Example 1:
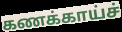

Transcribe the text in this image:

கணக்காய்ச்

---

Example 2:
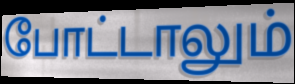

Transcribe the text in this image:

போட்டாலும்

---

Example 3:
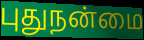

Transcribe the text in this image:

புதுநன்மை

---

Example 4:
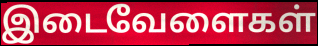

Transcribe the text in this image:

இடைவேளைகள்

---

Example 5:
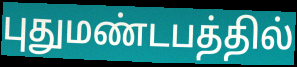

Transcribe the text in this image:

புதுமண்டபத்தில்